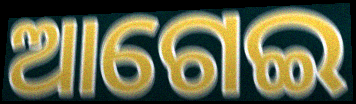
ଆଗେଇ